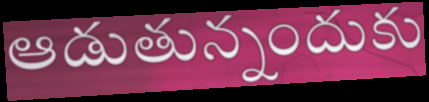
ఆడుతున్నందుకు